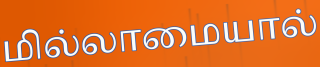
மில்லாமையால்